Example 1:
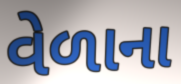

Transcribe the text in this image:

વેળાના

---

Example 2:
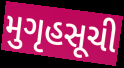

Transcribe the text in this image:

મુગૃહસૂચી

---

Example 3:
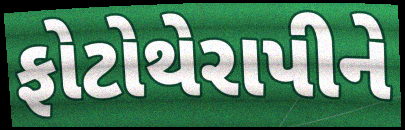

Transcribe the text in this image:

ફોટોથેરાપીને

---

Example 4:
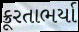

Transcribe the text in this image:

ક્રૂરતાભર્યા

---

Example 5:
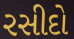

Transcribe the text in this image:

રસીદો